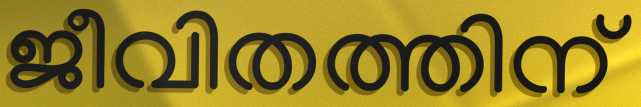
ജീവിതത്തിന്